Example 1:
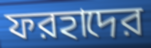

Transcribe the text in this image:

ফরহাদের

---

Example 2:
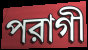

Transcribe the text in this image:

পরাগী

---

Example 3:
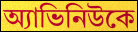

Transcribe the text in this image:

অ্যাভিনিউকে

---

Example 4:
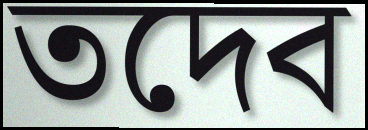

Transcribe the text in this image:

তদেব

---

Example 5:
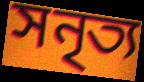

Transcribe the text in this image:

সনৃত্য